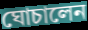
ঘোচালেন